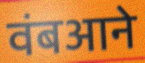
वंबआने